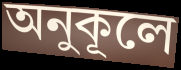
অনুকূলে